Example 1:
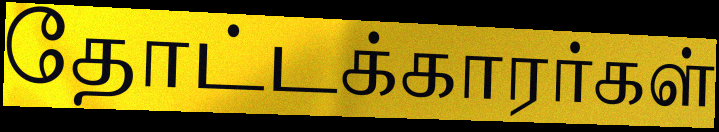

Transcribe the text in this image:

தோட்டக்காரர்கள்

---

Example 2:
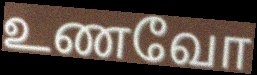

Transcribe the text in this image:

உணவோ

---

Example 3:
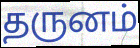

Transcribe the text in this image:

தருனம்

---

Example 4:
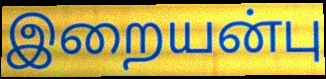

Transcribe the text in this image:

இறையன்பு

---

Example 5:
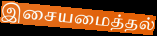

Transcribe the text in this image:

இசையமைத்தல்